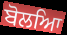
ਬੋਲਆਿ